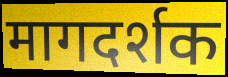
मागदर्शक